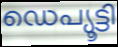
ഡെപ്യൂട്ടി